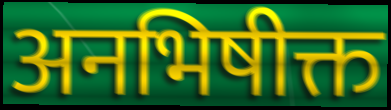
अनभिषीक्त